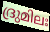
ദ്രുമിലഃ